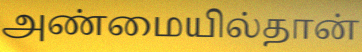
அண்மையில்தான்